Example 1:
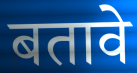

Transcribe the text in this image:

बतावे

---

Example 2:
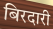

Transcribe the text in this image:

बिरदारी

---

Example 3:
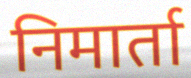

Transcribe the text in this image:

निमार्ता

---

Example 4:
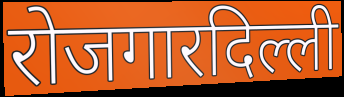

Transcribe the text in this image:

रोजगारदिल्ली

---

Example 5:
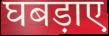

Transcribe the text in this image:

घबड़ाए